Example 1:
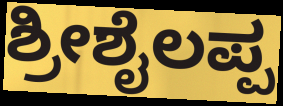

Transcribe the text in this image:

ಶ್ರೀಶೈಲಪ್ಪ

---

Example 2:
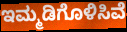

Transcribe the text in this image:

ಇಮ್ಮಡಿಗೊಳಿಸಿವೆ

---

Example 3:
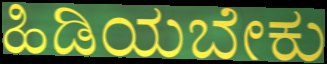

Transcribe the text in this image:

ಹಿಡಿಯಬೇಕು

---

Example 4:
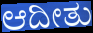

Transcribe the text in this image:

ಆದೀತು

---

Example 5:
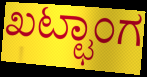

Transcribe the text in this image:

ಖಟ್ಟಾಂಗ